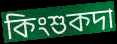
কিংশুকদা